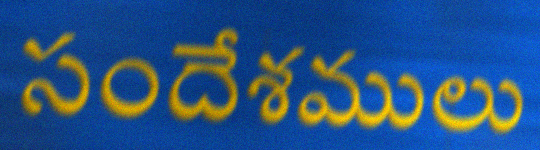
సందేశములు